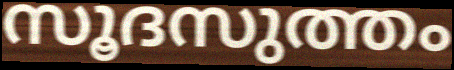
സൂദസുത്തം